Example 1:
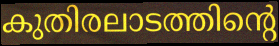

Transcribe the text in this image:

കുതിരലാടത്തിന്റെ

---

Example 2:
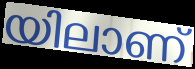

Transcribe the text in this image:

യിലാണ്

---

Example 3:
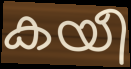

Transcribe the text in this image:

കയീ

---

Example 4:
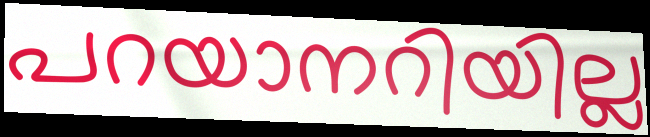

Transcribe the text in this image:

പറയാനറിയില്ല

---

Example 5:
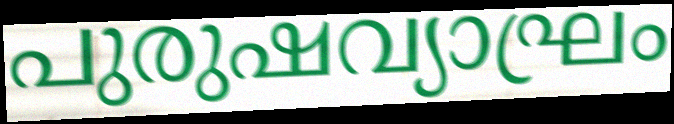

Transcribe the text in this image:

പുരുഷവ്യാഘ്രം